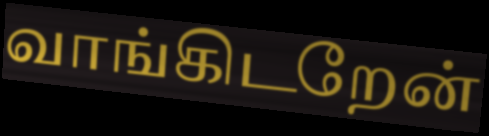
வாங்கிடறேன்